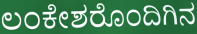
ಲಂಕೇಶರೊಂದಿಗಿನ